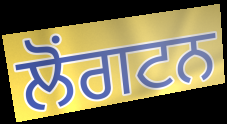
ਲੋਂਗਟਨ